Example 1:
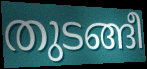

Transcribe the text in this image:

തുടങ്ങീ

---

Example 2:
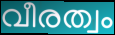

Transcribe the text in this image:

വീരത്വം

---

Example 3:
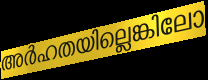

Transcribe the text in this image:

അർഹതയില്ലെങ്കിലോ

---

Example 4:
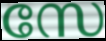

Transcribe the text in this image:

സേ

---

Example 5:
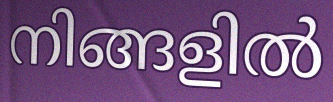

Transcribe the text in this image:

നിങ്ങളിൽ